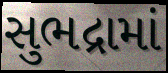
સુભદ્રામાં